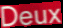
Deux